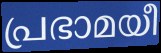
പ്രഭാമയീ